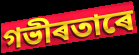
গভীৰতাৰে